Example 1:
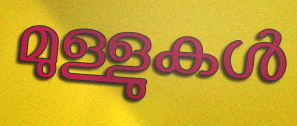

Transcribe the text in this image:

മുള്ളുകൾ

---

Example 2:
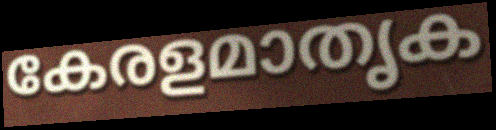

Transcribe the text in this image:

കേരളമാതൃക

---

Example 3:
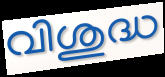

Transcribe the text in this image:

വിശുദ്ധ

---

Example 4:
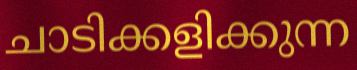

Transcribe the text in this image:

ചാടിക്കളിക്കുന്ന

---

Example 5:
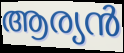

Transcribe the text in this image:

ആര്യൻ